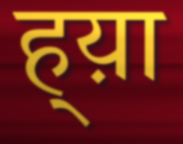
ह्य़ा